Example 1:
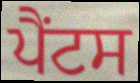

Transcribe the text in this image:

ਪੈਂਟਸ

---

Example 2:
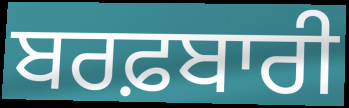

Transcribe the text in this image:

ਬਰਫ਼ਬਾਰੀ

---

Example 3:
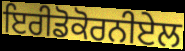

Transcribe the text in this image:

ਇਰੀਡੋਕੋਰਨੀਏਲ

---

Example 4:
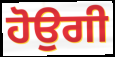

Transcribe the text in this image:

ਹੋਉਗੀ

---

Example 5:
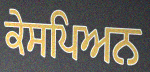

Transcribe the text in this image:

ਕੇਸਪਿਅਨ